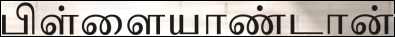
பிள்ளையாண்டான்